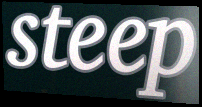
steep